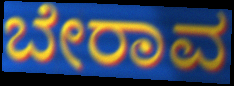
ಬೇರಾವ